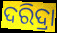
ଦରିଦ୍ରା